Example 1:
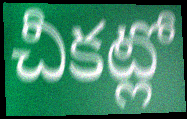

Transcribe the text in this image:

చీకట్లో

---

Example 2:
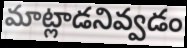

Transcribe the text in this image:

మాట్లాడనివ్వడం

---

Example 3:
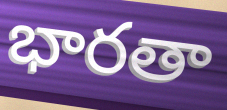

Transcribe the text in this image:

భారతా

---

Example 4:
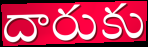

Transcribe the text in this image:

దారుకు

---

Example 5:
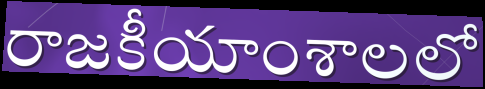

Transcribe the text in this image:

రాజకీయాంశాలలో